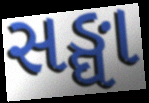
સઙ્ઘા